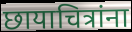
छायाचित्रांना